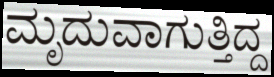
ಮೃದುವಾಗುತ್ತಿದ್ದ